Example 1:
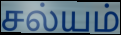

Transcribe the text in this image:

சல்யம்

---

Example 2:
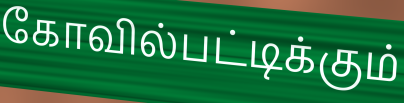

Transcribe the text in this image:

கோவில்பட்டிக்கும்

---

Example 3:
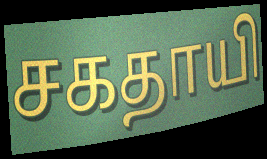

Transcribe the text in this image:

சகதாயி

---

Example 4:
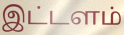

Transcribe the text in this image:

இட்டளம்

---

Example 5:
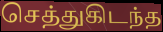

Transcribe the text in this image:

செத்துகிடந்த